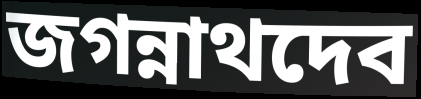
জগন্নাথদেব